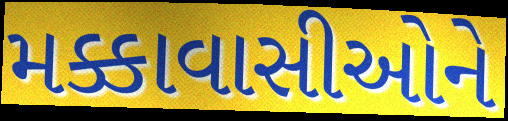
મક્કાવાસીઓને